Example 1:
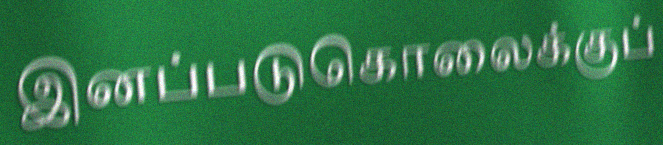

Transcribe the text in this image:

இனப்படுகொலைக்குப்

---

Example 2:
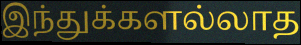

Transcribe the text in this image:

இந்துக்களல்லாத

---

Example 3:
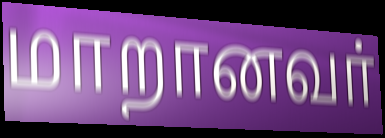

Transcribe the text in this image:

மாறானவர்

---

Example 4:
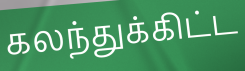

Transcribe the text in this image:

கலந்துக்கிட்ட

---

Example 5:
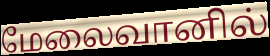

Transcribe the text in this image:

மேலைவானில்